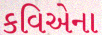
કવિએના